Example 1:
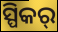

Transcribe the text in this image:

ସ୍ପିକର୍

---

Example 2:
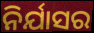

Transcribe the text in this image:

ନିର୍ଯାସର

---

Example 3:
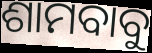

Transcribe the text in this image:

ଶାମବାବୁ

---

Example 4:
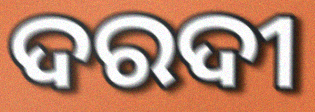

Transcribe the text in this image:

ଦରଦୀ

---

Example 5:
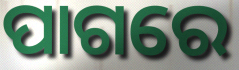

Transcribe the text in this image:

ପାଗରେ